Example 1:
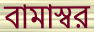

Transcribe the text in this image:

বামাস্বর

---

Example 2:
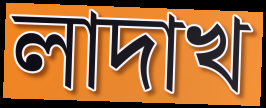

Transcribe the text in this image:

লাদাখ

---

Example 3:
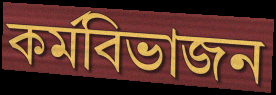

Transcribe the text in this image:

কর্মবিভাজন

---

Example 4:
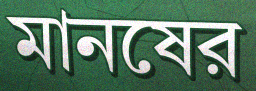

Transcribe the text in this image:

মানষের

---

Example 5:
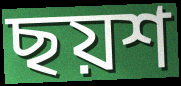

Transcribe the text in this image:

ছয়শ